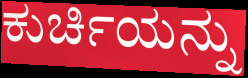
ಕುರ್ಚಿಯನ್ನು